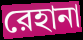
রেহানা